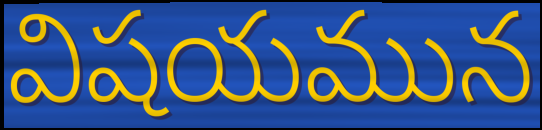
విషయమున